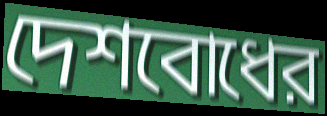
দেশবোধের